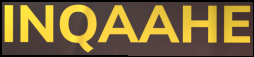
INQAAHE